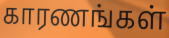
காரணங்கள்